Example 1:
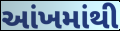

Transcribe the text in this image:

આંખમાંથી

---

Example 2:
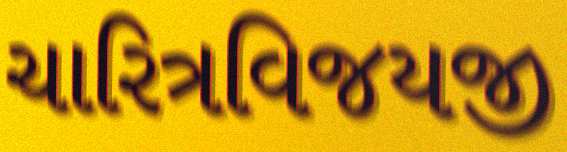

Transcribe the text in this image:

ચારિત્રવિજયજી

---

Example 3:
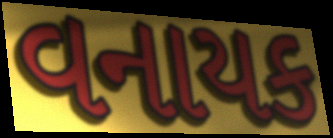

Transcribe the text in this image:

વનાયક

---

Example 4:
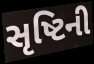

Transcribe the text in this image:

સૃષ્ટિની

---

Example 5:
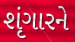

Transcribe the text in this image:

શૃંગારને